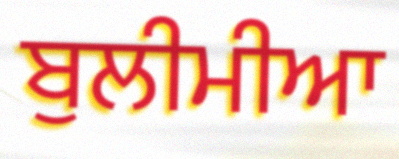
ਬੁਲੀਮੀਆ